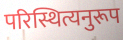
परिस्थित्यनुरूप